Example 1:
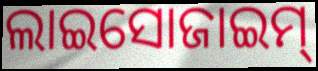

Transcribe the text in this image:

ଲାଇସୋଜାଇମ୍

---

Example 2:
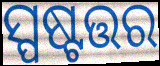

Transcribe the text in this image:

ସ୍ପଷ୍ଟତ୍ତର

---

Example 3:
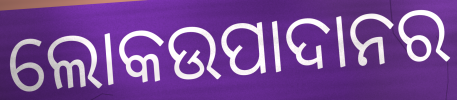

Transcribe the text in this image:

ଲୋକଉପାଦାନର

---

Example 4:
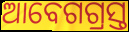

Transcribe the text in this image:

ଆବେଗଗ୍ରସ୍ତ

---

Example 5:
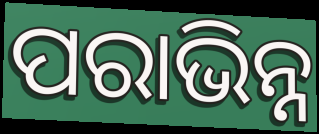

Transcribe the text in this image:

ପରାଭିନ୍ନ